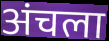
अंचला